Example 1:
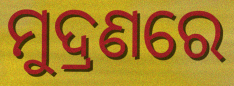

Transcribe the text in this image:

ମୁଦ୍ରଣରେ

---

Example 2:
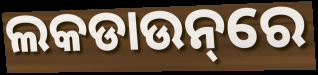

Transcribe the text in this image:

ଲକଡାଉନ୍‌ରେ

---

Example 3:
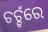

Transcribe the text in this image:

ଚର୍ଚ୍ଚରେ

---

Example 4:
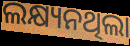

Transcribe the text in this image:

ଲକ୍ଷ୍ୟନଥିଲା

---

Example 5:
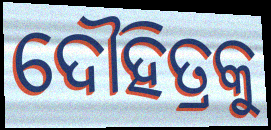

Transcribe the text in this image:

ଦୌହିତ୍ରକୁ